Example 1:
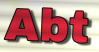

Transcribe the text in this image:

Abt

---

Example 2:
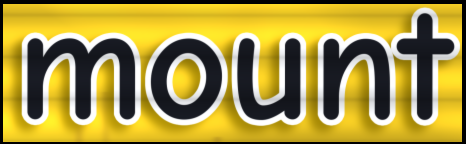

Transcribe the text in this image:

mount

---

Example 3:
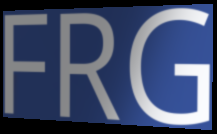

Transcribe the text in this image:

FRG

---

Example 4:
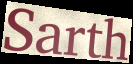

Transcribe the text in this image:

Sarth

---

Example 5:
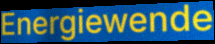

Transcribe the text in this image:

Energiewende